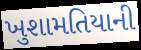
ખુશામતિયાની